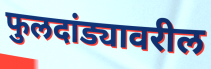
फुलदांड्यावरील